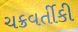
ચક્રવર્તીકી